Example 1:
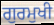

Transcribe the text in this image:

ਗੁਰਮੁਖੀ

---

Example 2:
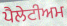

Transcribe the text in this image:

ਪੈਲੇਟੀਅਮ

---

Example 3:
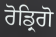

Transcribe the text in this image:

ਰੋਡ੍ਰਿਗੋ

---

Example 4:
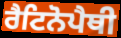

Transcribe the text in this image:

ਰੈਟਿਨੋਪੈਥੀ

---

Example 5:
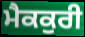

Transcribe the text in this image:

ਮੈਕਕੁਰੀ